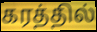
கரத்தில்